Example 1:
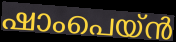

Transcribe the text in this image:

ഷാംപെയ്ൻ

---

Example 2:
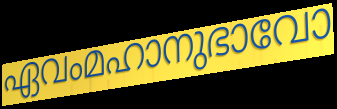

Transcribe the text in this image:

ഏവംമഹാനുഭാവോ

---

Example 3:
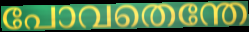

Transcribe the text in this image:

പോവതെന്തേ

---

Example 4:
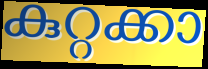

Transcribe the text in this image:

കുറ്റക്കാ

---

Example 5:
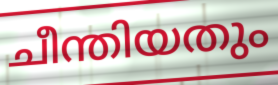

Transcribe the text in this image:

ചീന്തിയതും